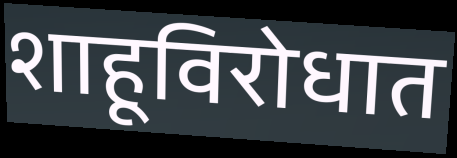
शाहूविरोधात